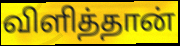
விளித்தான்